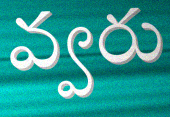
వ్వరు